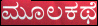
ಮೂಲಕಥೆ